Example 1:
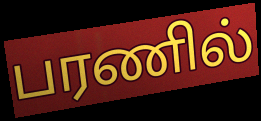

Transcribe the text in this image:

பரணில்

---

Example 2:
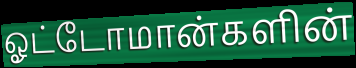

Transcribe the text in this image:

ஓட்டோமான்களின்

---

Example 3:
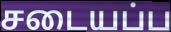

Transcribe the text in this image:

சடையப்ப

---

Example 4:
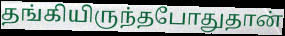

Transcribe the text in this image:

தங்கியிருந்தபோதுதான்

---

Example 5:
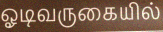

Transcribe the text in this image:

ஓடிவருகையில்